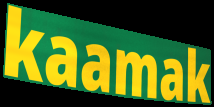
kaamak